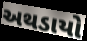
અથડાયો